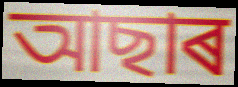
আছাৰ